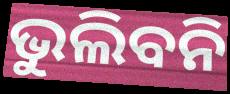
ଭୁଲିବନି